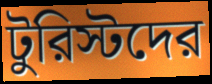
টুরিস্টদের